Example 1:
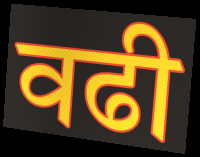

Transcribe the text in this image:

वढी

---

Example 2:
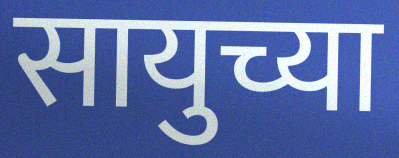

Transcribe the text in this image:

सायुच्या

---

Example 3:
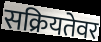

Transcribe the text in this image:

सक्रियतेवर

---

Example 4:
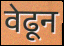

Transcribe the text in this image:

वेढून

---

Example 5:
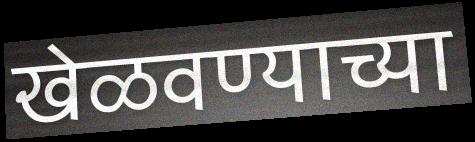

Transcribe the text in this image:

खेळवण्याच्या